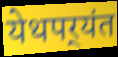
येथपर्यंत